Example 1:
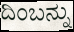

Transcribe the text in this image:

ದಿಂಬನ್ನು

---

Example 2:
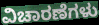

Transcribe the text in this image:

ವಿಚಾರಣೆಗಳು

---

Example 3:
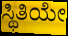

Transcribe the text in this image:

ಸ್ಥಿತಿಯೇ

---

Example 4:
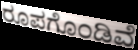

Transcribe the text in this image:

ರೂಪಗೊಂಡಿವೆ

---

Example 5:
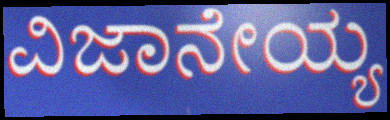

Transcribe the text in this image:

ವಿಜಾನೇಯ್ಯ